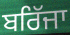
ਬਰਿੱਜਾ